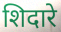
शिदारे